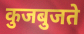
कुजबुजते